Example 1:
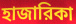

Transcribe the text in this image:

হাজারিকা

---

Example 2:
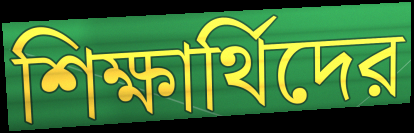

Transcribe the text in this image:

শিক্ষার্থিদের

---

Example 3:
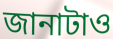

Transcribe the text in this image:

জানাটাও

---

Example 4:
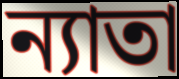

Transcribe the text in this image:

ন্যাতা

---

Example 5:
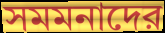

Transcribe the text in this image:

সমমনাদের